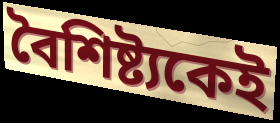
বৈশিষ্ট্যকেই